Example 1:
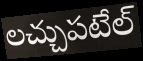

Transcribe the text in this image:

లచ్చుపటేల్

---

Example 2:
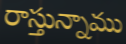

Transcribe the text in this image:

రాస్తున్నాము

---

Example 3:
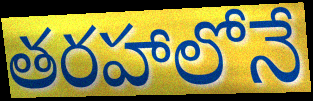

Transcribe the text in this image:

తరహాలోనే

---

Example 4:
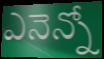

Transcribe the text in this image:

ఎనెన్నో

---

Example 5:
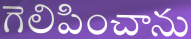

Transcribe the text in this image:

గెలిపించాను